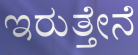
ಇರುತ್ತೇನೆ